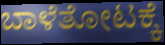
ಬಾಳೆತೋಟಕ್ಕೆ